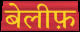
बेलीफ़